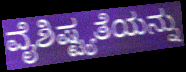
ವೈಶಿಷ್ಟ್ಯತೆಯನ್ನು